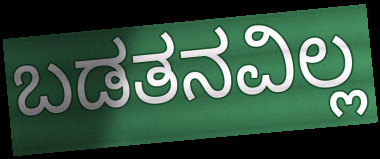
ಬಡತನವಿಲ್ಲ